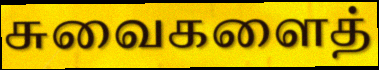
சுவைகளைத்